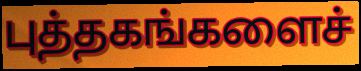
புத்தகங்களைச்